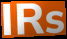
IRs